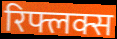
रिफ्लक्स